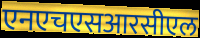
एनएचएसआरसीएल